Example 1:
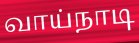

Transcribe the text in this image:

வாய்நாடி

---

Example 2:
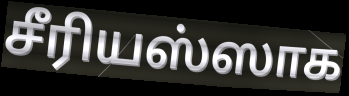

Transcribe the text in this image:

சீரியஸ்ஸாக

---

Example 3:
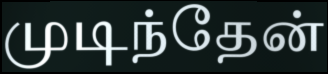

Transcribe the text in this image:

முடிந்தேன்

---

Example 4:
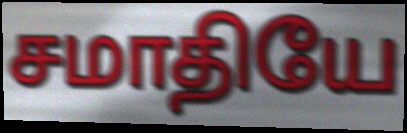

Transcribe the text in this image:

சமாதியே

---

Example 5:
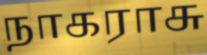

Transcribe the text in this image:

நாகராசு